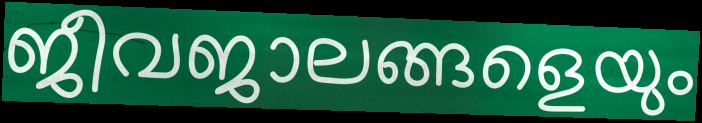
ജീവജാലങ്ങളെയും